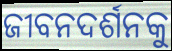
ଜୀବନଦର୍ଶନକୁ